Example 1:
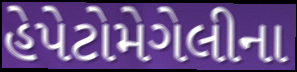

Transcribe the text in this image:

હેપેટોમેગેલીના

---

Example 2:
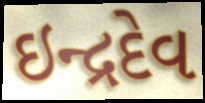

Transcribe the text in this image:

ઇન્દ્રદેવ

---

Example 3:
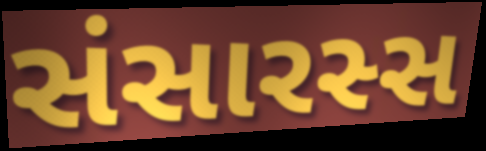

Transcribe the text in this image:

સંસારસ્સ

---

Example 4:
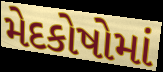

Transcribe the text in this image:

મેદકોષોમાં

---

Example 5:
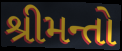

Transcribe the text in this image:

શ્રીમન્તો